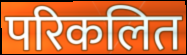
परिकलित